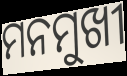
ମନମୁଖୀ